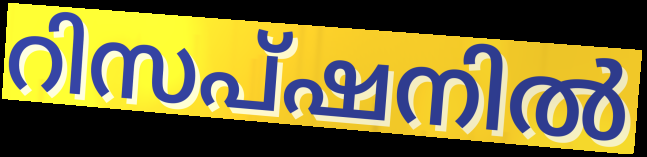
റിസപ്ഷനിൽ